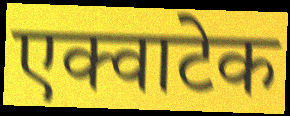
एक्वाटेक